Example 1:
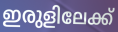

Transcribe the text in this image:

ഇരുളിലേക്ക്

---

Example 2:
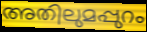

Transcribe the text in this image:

അതിലുമപ്പുറം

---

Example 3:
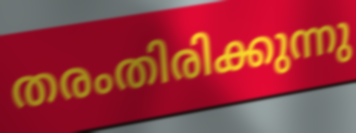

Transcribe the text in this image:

തരംതിരിക്കുന്നു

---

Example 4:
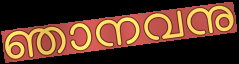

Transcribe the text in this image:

ഞാനവനു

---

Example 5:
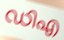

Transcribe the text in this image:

ഡിഎ